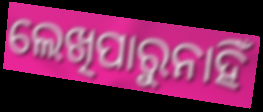
ଲେଖିପାରୁନାହିଁ